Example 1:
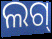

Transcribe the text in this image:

ଲଗ୍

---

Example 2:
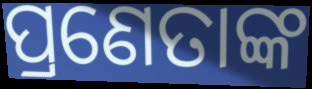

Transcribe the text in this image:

ପ୍ରଣେତାଙ୍କ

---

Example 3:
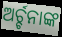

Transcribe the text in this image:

ଅର୍ଚ୍ଚନାଙ୍କ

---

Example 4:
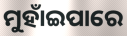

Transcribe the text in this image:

ମୁହାଁଇପାରେ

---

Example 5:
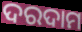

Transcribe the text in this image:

ଦରଦାମ